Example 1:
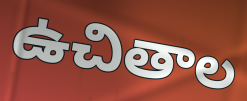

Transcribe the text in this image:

ఉచితాల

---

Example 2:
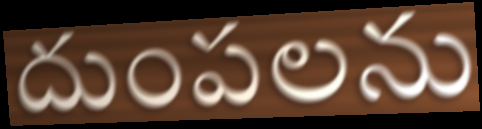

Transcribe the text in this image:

దుంపలను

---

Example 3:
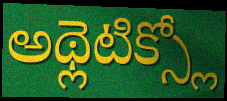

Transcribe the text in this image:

అథ్లెటిక్స్లో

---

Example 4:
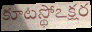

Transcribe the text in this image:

కూటస్థోఽక్షర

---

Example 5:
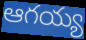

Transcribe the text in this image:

ఆగయ్య